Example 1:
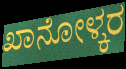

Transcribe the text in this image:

ಖಾನೋಳ್ಕರ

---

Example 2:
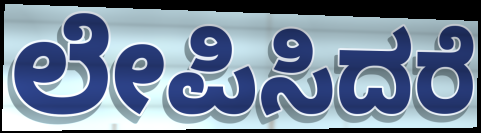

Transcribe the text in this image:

ಲೇಪಿಸಿದರೆ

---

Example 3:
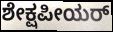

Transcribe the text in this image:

ಶೇಕ್ಷಪೀಯರ್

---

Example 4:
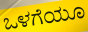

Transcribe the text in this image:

ಒಳಗೆಯೂ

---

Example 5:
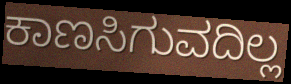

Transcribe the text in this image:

ಕಾಣಸಿಗುವದಿಲ್ಲ